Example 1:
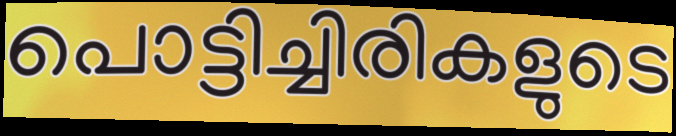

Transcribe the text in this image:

പൊട്ടിച്ചിരികളുടെ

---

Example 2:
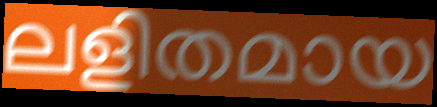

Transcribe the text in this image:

ലളിതമായ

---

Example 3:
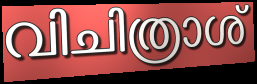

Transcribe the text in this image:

വിചിത്രാശ്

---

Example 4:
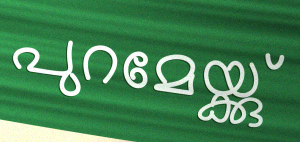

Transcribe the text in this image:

പുറമേയ്ക്കു്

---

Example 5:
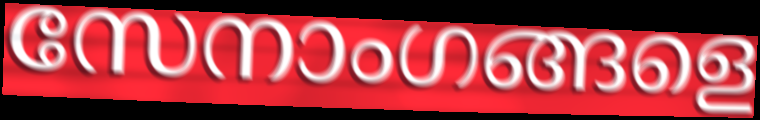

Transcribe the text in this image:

സേനാംഗങ്ങളെ